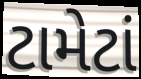
ટામેટાં